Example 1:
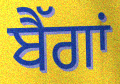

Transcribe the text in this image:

ਬੈੱਗਾਂ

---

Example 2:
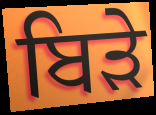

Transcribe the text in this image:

ਬਿੜੇ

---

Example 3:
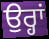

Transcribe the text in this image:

ਉਰ੍ਹਾਂ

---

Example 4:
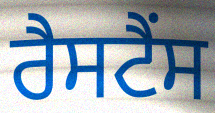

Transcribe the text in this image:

ਰੈਸਟੈਂਸ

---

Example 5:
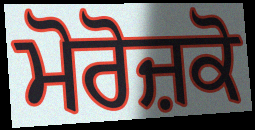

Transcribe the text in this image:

ਮੋਰੋਜ਼ਕੋ